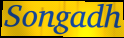
Songadh